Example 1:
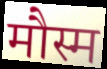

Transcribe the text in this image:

मौस्म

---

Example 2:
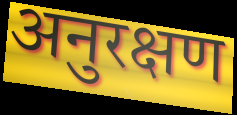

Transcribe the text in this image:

अनुरक्षण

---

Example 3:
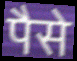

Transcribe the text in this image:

पैसे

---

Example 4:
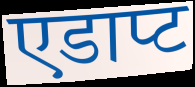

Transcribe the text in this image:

एडाप्ट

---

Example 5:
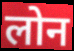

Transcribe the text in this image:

लोन